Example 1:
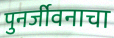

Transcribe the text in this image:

पुनर्जीवनाचा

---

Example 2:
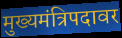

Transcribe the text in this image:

मुख्यमंत्रिपदावर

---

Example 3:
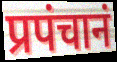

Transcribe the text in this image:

प्रपंचानं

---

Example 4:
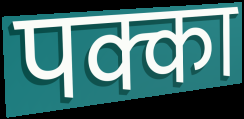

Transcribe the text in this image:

पक्का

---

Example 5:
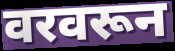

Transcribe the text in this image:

वरवरून